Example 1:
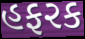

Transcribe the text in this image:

હફરક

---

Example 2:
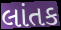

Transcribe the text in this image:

લાંતક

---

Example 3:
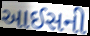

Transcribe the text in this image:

આઈસની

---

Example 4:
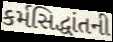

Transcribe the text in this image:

કર્મસિદ્ધાંતની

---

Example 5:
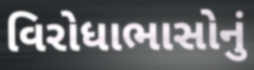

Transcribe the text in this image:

વિરોધાભાસોનું